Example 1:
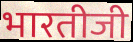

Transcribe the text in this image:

भारतीजी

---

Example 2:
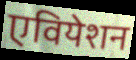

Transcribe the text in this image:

एवियेशन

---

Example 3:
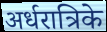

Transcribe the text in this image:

अर्धरात्रिके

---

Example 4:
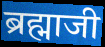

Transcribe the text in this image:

ब्रह्माजी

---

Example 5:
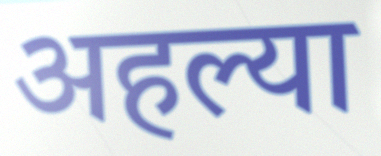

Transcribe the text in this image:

अहल्या